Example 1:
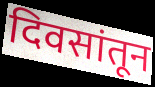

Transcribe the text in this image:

दिवसांतून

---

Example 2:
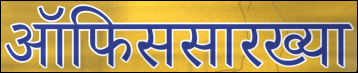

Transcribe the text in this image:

ऑफिससारख्या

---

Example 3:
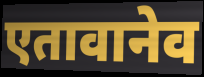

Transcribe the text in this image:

एतावानेव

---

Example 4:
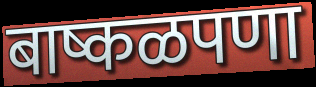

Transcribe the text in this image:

बाष्कळपणा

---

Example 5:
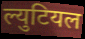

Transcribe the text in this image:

ल्युटियल